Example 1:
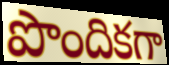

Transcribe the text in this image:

పొందికగా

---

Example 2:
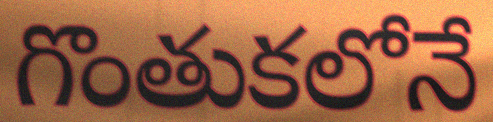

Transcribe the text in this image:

గొంతుకలోనే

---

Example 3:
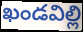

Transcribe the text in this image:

ఖండవిల్లి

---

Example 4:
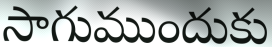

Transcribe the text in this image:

సాగుముందుకు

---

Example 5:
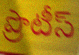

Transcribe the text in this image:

ప్రొటీస్